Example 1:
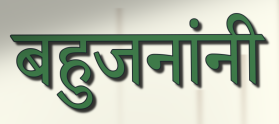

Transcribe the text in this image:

बहुजनांनी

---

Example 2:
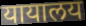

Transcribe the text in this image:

यायालय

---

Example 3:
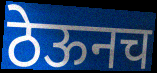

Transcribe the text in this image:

ठेऊनच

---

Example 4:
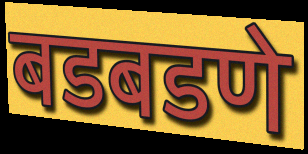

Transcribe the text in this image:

बडबडणे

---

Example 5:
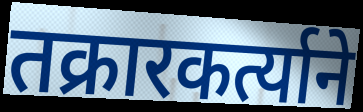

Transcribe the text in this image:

तक्रारकर्त्याने